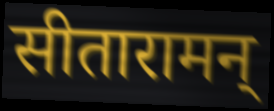
सीतारामन्